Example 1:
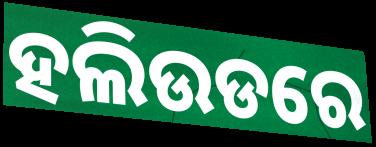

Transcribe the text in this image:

ହଲିଉଡରେ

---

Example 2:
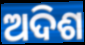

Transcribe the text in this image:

ଅଦିଶ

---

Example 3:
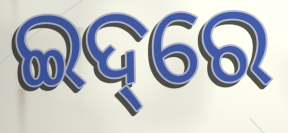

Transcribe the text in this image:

ଇଦ୍‌ରେ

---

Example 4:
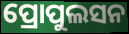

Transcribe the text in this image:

ପ୍ରୋପୁଲସନ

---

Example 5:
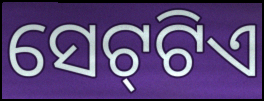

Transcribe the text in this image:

ସେଟ୍‍ଟିଏ